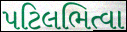
પટિલભિત્વા